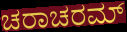
ಚರಾಚರಮ್